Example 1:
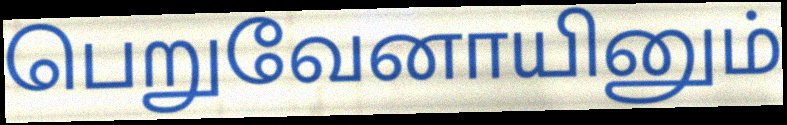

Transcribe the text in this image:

பெறுவேனாயினும்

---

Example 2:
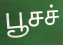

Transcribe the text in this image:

பூசச்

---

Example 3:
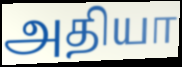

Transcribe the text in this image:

அதியா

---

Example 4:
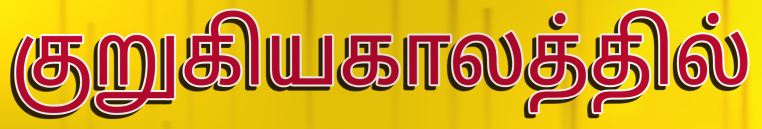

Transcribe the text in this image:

குறுகியகாலத்தில்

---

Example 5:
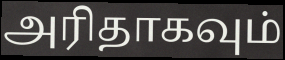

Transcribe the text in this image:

அரிதாகவும்